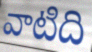
వాటిది